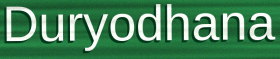
Duryodhana